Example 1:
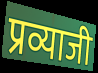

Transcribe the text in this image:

प्रव्याजी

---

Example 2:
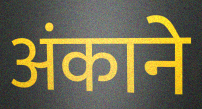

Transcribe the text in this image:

अंकाने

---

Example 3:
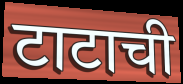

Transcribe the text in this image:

टाटाची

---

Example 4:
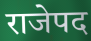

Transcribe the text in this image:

राजेपद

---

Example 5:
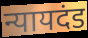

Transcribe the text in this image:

न्यायदंड